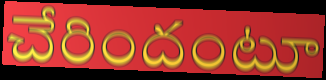
చేరిందంటూ